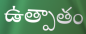
ఉత్పాతం